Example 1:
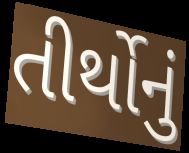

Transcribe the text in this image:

તીર્થોનું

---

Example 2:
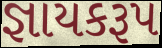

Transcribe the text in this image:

જ્ઞાયકરૂપ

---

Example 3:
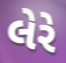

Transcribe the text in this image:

લેરે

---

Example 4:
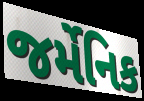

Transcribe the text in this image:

જર્મેનિક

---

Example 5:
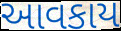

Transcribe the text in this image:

આવકાય